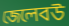
জেলেবউ